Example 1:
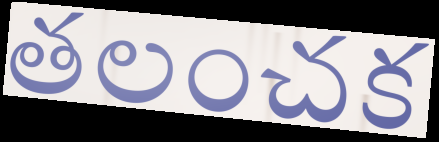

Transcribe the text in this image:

తలంచక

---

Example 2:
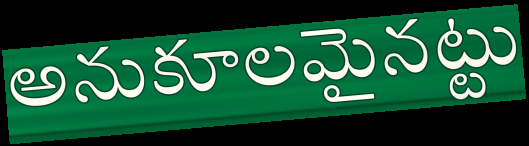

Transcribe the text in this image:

అనుకూలమైనట్టు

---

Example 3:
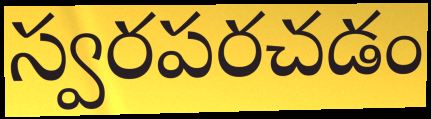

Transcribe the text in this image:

స్వరపరచడం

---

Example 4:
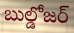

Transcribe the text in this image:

బుల్డోజర్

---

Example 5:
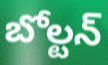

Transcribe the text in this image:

బోల్టన్